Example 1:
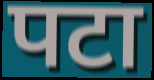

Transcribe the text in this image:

पटा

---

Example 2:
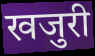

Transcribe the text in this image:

खजुरी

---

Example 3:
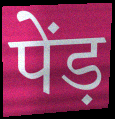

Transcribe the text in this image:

पेंड़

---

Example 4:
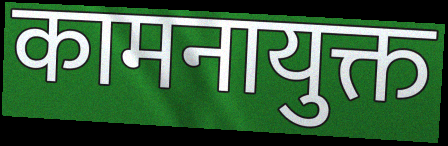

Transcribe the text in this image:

कामनायुक्त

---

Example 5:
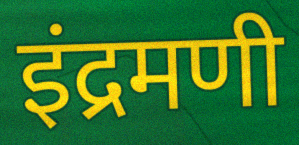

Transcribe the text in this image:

इंद्रमणी